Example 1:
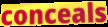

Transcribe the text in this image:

conceals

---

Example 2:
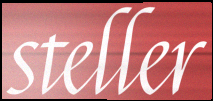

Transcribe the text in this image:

steller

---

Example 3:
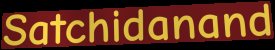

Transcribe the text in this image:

Satchidanand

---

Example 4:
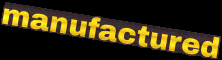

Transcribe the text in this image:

manufactured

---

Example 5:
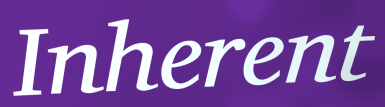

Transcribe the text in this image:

Inherent